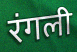
रंगली